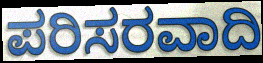
ಪರಿಸರವಾದಿ